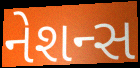
નેશન્સ